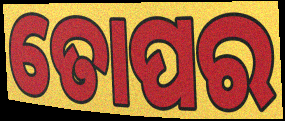
ତୋପର